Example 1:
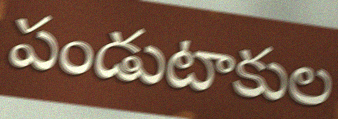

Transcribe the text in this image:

పండుటాకుల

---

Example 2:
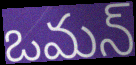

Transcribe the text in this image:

ఒమన్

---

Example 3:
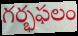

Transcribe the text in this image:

గర్భఫలం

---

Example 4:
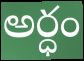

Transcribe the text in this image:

అర్ధం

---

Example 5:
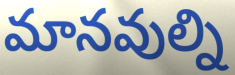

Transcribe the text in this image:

మానవుల్ని